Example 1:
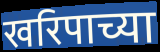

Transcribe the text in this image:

खरिपाच्या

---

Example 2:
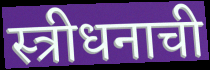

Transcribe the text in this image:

स्त्रीधनाची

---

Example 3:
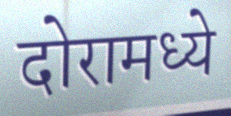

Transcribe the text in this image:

दोरामध्ये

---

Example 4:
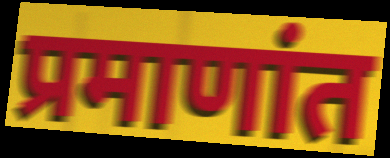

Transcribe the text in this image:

प्रमाणांत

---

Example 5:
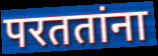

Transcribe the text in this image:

परततांना